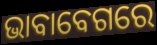
ଭାବାବେଗରେ